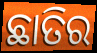
ଛାତିର